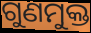
ଗୁଣମୁକ୍ତ